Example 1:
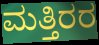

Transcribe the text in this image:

ಮತ್ತಿರರ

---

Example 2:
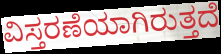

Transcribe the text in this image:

ವಿಸ್ತರಣೆಯಾಗಿರುತ್ತದೆ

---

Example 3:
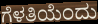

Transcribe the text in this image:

ಗೆಳತಿಯೆಂದು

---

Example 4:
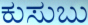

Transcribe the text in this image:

ಕುಸುಬು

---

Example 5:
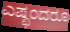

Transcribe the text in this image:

ಎಷ್ಟಂದರೂ